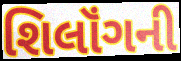
શિલૉંગની